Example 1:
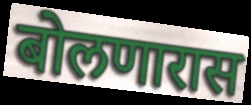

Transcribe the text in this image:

बोलणारास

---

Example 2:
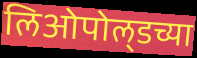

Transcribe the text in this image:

लिओपोल्डच्या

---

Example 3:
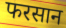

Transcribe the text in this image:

फरसान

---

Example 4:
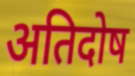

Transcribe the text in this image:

अतिदोष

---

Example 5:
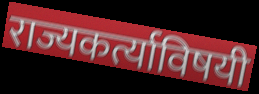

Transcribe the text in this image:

राज्यकर्त्याविषयी